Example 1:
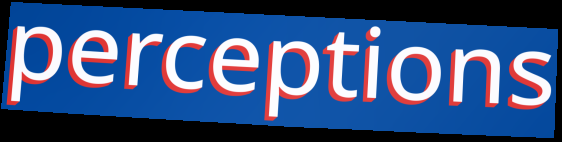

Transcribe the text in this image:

perceptions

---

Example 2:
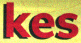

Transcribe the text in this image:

kes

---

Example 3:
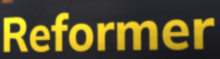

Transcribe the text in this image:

Reformer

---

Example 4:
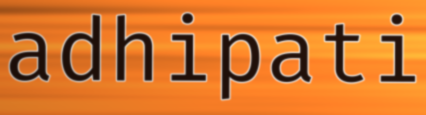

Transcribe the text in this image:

adhipati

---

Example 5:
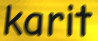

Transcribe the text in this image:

karit